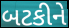
બટકીને